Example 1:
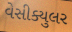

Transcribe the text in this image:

વેસીક્યુલર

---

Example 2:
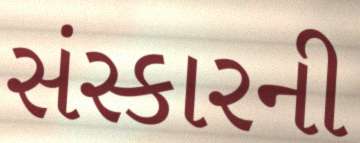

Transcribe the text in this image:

સંસ્કારની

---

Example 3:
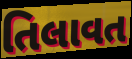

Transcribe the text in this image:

તિલાવત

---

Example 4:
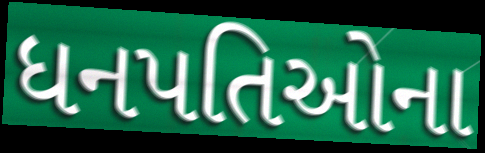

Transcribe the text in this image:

ધનપતિઓના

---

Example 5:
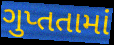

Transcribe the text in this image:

ગુપ્તતામાં